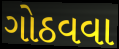
ગોઠવવા